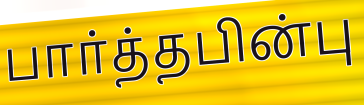
பார்த்தபின்பு